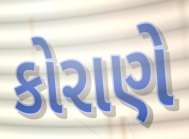
કોરાણે